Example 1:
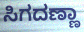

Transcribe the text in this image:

ಸಿಗದಣ್ಣಾ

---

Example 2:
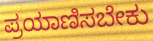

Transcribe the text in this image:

ಪ್ರಯಾಣಿಸಬೇಕು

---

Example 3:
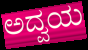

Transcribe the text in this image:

ಅದ್ವಯ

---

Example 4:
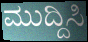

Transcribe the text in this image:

ಮುದ್ದಿಸಿ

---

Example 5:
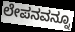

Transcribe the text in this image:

ಲೇಪನವನ್ನೂ